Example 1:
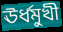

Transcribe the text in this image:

ঊৰ্ধমুখী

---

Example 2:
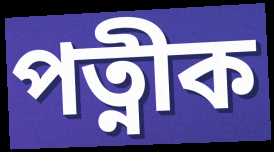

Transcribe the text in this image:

পত্নীক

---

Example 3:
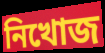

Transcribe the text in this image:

নিখোজ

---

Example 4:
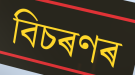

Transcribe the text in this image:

বিচৰণৰ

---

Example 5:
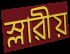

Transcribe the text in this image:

স্লাৱীয়